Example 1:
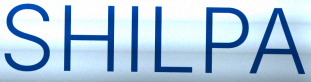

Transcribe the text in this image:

SHILPA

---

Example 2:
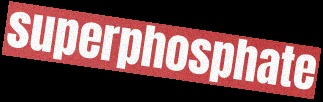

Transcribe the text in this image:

superphosphate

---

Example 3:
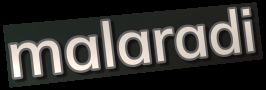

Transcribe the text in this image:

malaradi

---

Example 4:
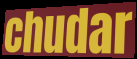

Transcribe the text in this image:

chudar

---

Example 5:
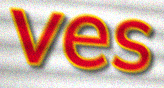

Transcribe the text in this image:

ves